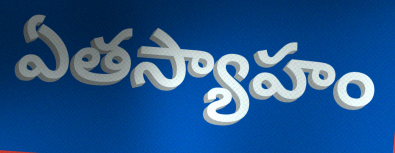
ఏతస్యాహం